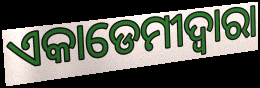
ଏକାଡେମୀଦ୍ୱାରା